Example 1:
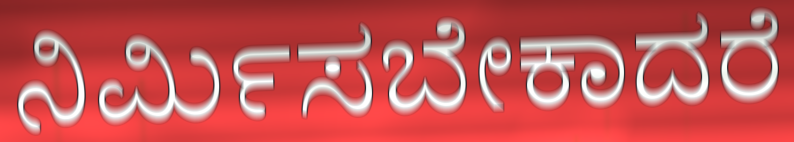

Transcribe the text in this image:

ನಿರ್ಮಿಸಬೇಕಾದರೆ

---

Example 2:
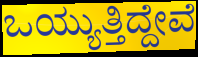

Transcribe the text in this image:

ಒಯ್ಯುತ್ತಿದ್ದೇವೆ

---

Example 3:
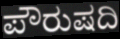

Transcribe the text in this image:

ಪೌರುಷದಿ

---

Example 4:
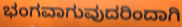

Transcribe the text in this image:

ಭಂಗವಾಗುವುದರಿಂದಾಗಿ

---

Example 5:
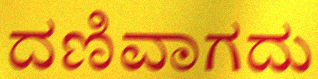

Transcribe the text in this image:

ದಣಿವಾಗದು